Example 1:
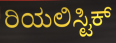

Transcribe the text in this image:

ರಿಯಲಿಸ್ಟಿಕ್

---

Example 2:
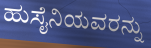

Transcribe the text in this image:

ಹುಸೈನಿಯವರನ್ನು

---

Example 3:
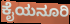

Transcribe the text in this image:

ಕೈಯನೂರಿ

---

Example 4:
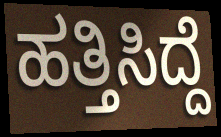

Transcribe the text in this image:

ಹತ್ತಿಸಿದ್ದೆ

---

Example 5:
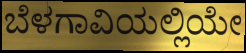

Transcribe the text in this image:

ಬೆಳಗಾವಿಯಲ್ಲಿಯೇ